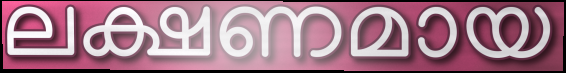
ലക്ഷണമായ